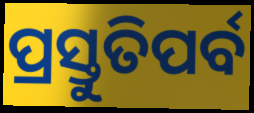
ପ୍ରସ୍ତୁତିପର୍ବ